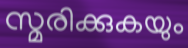
സ്മരിക്കുകയും